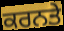
ਕਰਨਤੇ